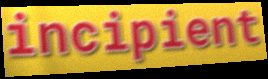
incipient